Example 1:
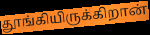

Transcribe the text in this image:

தூங்கியிருக்கிறான்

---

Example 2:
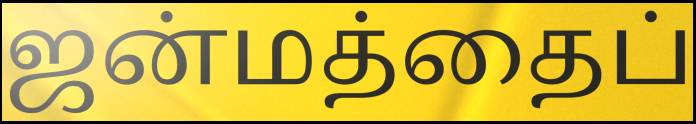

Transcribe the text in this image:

ஜன்மத்தைப்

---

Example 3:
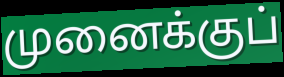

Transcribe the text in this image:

முனைக்குப்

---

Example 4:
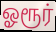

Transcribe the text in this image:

ஓரூர்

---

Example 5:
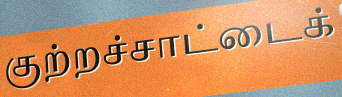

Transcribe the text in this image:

குற்றச்சாட்டைக்